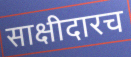
साक्षीदारच